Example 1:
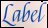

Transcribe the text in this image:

Label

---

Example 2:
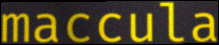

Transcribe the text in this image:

maccula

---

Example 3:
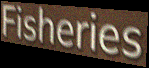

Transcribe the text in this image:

Fisheries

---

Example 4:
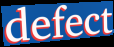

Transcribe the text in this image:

defect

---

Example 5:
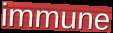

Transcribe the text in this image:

immune